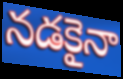
నడకైనా